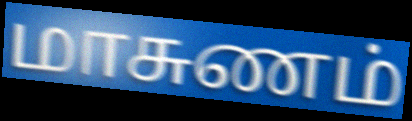
மாசுணம்